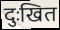
दुःखित